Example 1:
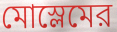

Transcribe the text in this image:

মোস্লেমের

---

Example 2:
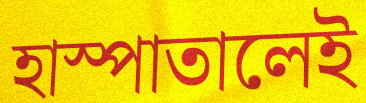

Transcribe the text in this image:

হাস্পাতালেই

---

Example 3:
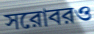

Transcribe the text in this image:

সরোবরও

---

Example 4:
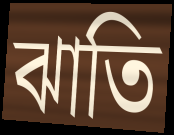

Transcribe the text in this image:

ঝাতি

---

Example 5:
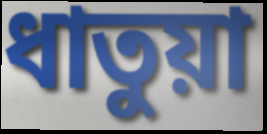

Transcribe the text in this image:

ধাতুয়া